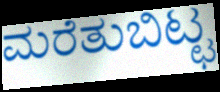
ಮರೆತುಬಿಟ್ಟ